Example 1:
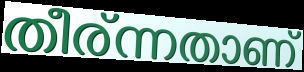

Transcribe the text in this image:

തീര്ന്നതാണ്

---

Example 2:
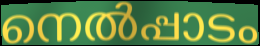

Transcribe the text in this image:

നെൽപ്പാടം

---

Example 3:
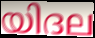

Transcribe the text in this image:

യിദല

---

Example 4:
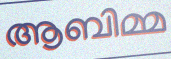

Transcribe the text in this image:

ആബിമ്മ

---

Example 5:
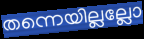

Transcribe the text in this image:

തന്നെയില്ലല്ലോ